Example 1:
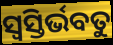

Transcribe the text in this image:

ସ୍ୱସ୍ତିର୍ଭବତୁ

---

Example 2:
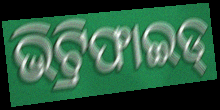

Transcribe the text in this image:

ଭିଟ୍ରିଫାଇଡ୍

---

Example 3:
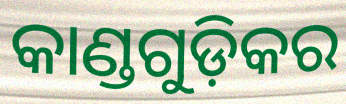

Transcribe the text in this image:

କାଣ୍ଡଗୁଡ଼ିକର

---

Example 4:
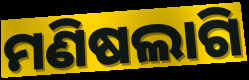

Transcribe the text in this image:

ମଣିଷଲାଗି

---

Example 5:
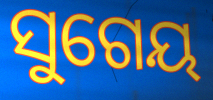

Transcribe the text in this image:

ସୁଗେୟ